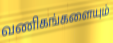
வணிகங்களையும்